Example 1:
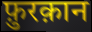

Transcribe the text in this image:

फ़ुरक़ान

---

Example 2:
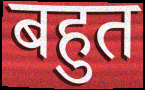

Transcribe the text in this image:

बहुत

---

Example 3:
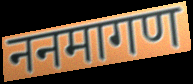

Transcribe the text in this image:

ननमागण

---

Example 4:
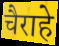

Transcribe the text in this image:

चैराहे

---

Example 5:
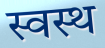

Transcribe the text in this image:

स्वस्थ